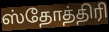
ஸ்தோத்திரி